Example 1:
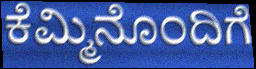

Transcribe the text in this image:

ಕೆಮ್ಮಿನೊಂದಿಗೆ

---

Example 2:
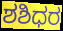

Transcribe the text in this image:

ಶಶಿಧರ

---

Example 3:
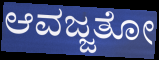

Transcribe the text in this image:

ಆವಜ್ಜತೋ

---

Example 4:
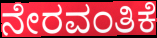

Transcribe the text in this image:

ನೇರವಂತಿಕೆ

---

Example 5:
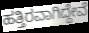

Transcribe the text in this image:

ಹತ್ತಿರವಾಗಿದ್ದೇವೆ